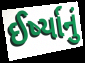
ઈર્ષ્યાનું